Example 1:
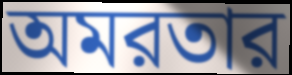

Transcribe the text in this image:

অমরতার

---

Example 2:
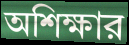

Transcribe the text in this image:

অশিক্ষার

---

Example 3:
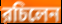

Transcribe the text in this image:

রচিলেন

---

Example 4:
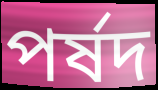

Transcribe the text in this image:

পর্ষদ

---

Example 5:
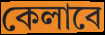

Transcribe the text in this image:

কেলাবে